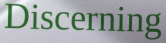
Discerning